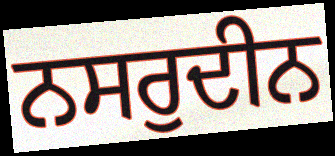
ਨਸਰੁਦੀਨ